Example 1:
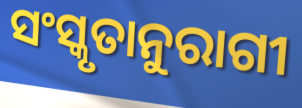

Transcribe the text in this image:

ସଂସ୍କୃତାନୁରାଗୀ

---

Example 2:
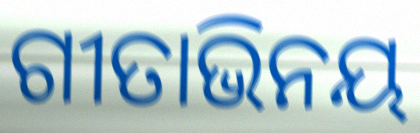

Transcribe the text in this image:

ଗୀତାଭିନୟ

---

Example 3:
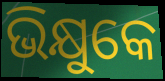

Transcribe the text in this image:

ଭିକ୍ଷୁକେ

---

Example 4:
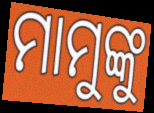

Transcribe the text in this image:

ମାମୁଙ୍କୁ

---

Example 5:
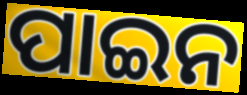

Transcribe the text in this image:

ପାଇନ